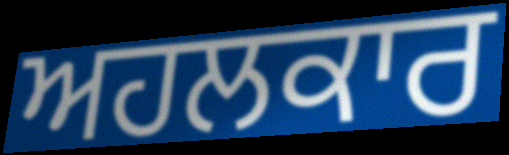
ਅਹਲਕਾਰ